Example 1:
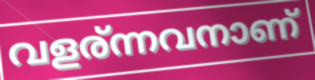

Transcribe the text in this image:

വളര്ന്നവനാണ്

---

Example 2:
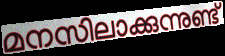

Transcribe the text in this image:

മനസിലാക്കുന്നുണ്ട്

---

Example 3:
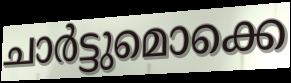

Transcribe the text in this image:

ചാർട്ടുമൊക്കെ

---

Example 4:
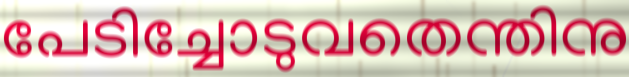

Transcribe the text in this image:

പേടിച്ചോടുവതെന്തിനു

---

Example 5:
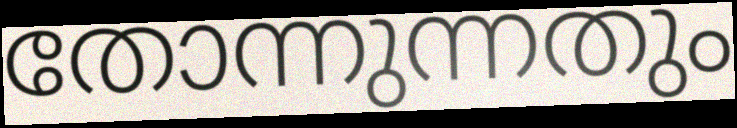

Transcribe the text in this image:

തോന്നുന്നതും